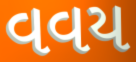
વવય